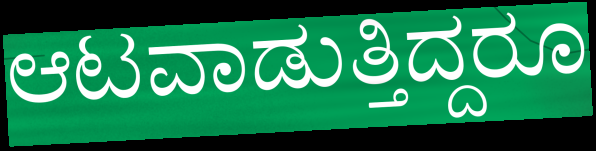
ಆಟವಾಡುತ್ತಿದ್ದರೂ